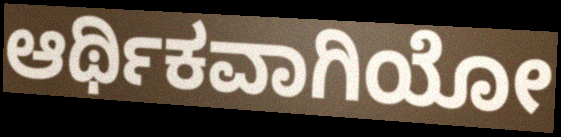
ಆರ್ಥಿಕವಾಗಿಯೋ